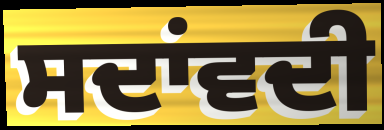
ਸਦਾਂਵਦੀ